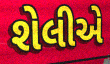
શેલીએ